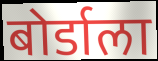
बोर्डाला